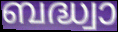
ബദ്ധ്വാ